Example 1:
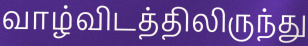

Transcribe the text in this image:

வாழ்விடத்திலிருந்து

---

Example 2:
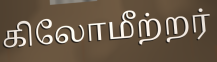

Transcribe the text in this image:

கிலோமீற்றர்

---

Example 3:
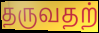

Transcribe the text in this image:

தருவதற்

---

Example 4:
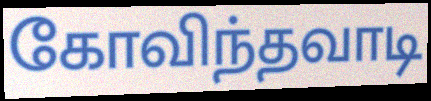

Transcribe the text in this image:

கோவிந்தவாடி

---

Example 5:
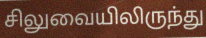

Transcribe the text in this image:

சிலுவையிலிருந்து